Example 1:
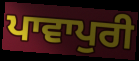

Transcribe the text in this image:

ਪਾਵਾਪੁਰੀ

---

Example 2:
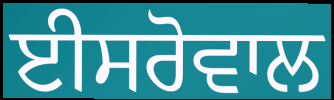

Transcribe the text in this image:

ਈਸਰੋਵਾਲ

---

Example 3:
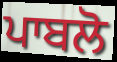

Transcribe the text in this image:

ਪਾਬਲੋ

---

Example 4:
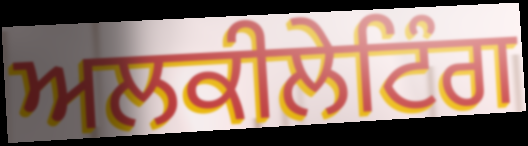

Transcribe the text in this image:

ਅਲਕੀਲੇਟਿੰਗ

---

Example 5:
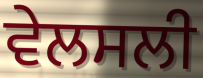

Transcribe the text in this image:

ਵੇਲਸਲੀ